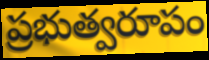
ప్రభుత్వరూపం